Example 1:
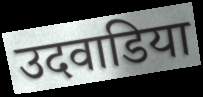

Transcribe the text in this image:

उदवाडिया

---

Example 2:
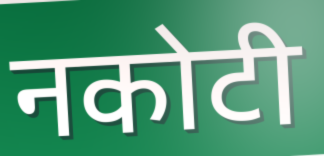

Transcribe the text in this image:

नकोटी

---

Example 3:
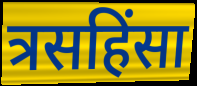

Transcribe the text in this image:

त्रसहिंसा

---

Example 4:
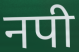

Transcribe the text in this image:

नपी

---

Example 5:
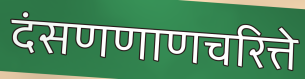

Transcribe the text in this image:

दंसणणाणचरित्ते